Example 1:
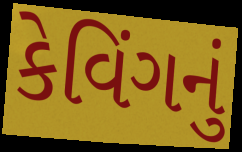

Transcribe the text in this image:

કેવિંગનું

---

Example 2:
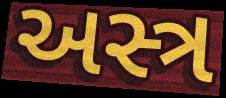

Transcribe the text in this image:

અસ્ત્ર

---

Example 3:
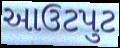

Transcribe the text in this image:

આઉટપુટ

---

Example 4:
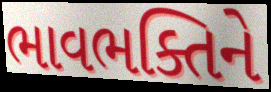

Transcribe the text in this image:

ભાવભક્તિને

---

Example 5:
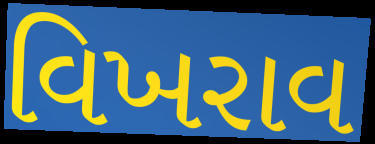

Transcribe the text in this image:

વિખરાવ